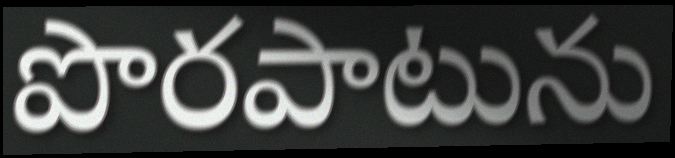
పొరపాటును